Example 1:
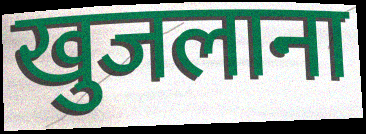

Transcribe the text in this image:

खुजलाना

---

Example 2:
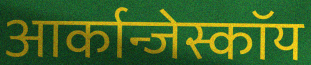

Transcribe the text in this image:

आर्कान्जेस्कॉय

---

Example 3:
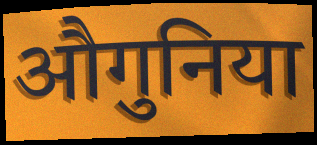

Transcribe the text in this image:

औगुनिया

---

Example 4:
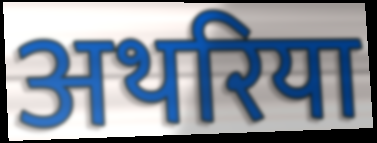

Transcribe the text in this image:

अथरिया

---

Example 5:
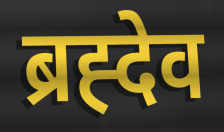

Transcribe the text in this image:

ब्रह्देव